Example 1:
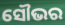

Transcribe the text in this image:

ସୌଭର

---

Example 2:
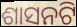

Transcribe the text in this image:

ଶାସନଟି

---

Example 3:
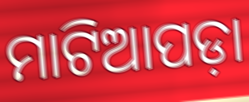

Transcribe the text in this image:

ମାଟିଆପଡ଼ା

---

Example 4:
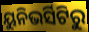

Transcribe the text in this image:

ୟୁନିଭର୍ସିଟିରୁ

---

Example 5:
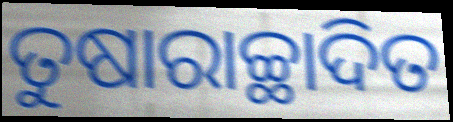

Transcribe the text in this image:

ତୁଷାରାଚ୍ଛାଦିତ